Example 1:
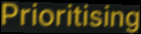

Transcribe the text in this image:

Prioritising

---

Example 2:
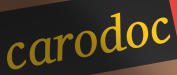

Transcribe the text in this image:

carodoc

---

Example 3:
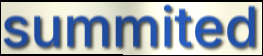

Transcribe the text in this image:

summited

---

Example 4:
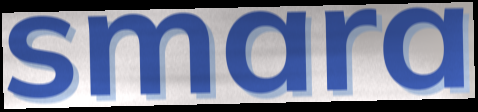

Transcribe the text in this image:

smara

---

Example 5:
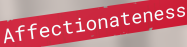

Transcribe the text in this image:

Affectionateness